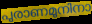
പുരാണമുനിനാ